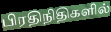
பிரதிநிதிகளில்